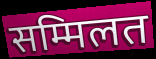
सम्मिलत